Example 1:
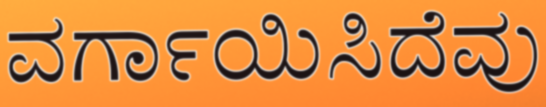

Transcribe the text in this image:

ವರ್ಗಾಯಿಸಿದೆವು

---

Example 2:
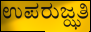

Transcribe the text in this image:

ಉಪರುಜ್ಝತಿ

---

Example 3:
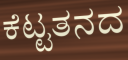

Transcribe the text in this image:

ಕೆಟ್ಟತನದ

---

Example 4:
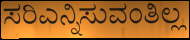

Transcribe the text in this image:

ಸರಿಎನ್ನಿಸುವಂತಿಲ್ಲ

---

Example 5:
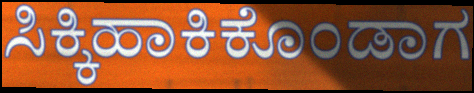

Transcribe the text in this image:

ಸಿಕ್ಕಿಹಾಕಿಕೊಂಡಾಗ